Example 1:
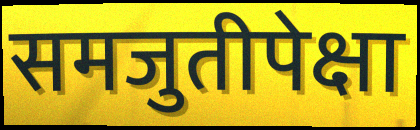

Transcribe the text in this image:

समजुतीपेक्षा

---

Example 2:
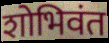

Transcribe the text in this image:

शोभिवंत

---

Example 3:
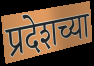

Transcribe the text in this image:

प्रदेशच्या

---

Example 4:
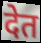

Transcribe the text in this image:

देत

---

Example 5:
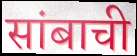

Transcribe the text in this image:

सांबाची